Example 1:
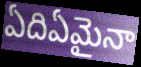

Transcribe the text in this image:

ఏదిఏమైనా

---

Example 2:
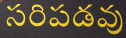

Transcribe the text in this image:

సరిపడవు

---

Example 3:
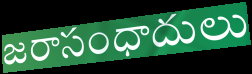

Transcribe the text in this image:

జరాసంధాదులు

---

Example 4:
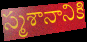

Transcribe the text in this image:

స్మశానానికి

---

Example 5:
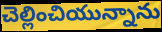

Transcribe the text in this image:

చెల్లించియున్నాను